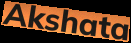
Akshata